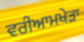
ਵਰੀਆਮਖੇੜਾ